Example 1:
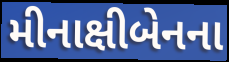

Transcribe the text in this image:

મીનાક્ષીબેનના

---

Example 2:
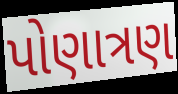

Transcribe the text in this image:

પોણાત્રણ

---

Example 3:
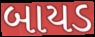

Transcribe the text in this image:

બાયડ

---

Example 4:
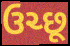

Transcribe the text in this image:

ઉચ્છૂ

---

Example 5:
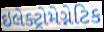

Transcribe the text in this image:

ઇલેક્ટ્રોમેગ્નેટિક